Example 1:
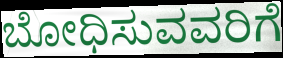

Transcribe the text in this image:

ಬೋಧಿಸುವವರಿಗೆ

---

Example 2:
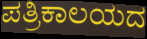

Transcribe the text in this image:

ಪತ್ರಿಕಾಲಯದ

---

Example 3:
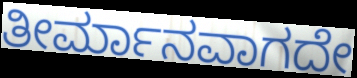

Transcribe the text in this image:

ತೀರ್ಮಾನವಾಗದೇ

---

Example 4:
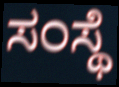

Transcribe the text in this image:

ಸಂಸ್ಥೆ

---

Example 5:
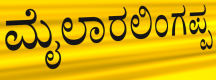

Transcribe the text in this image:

ಮೈಲಾರಲಿಂಗಪ್ಪ